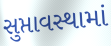
સુપ્તાવસ્થામાં